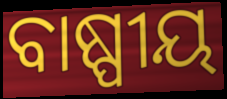
ବାଷ୍ପୀୟ